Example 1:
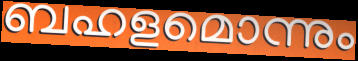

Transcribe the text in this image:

ബഹളമൊന്നും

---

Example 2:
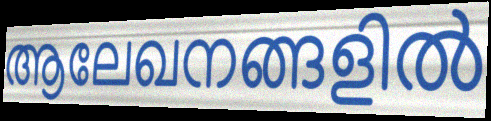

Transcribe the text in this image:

ആലേഖനങ്ങളിൽ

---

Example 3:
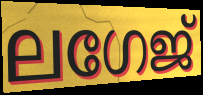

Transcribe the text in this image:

ലഗേജ്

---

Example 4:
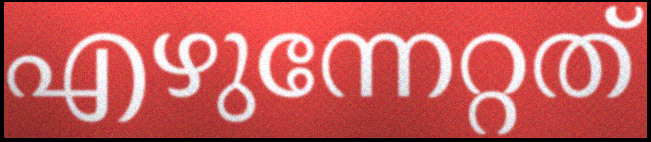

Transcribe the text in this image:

എഴുന്നേറ്റത്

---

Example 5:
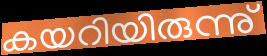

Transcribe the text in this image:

കയറിയിരുന്നു്